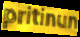
pritinun